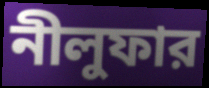
নীলুফার